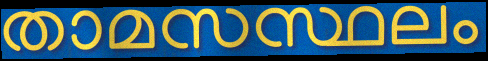
താമസസ്ഥലം